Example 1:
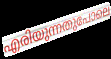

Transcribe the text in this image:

എരിയുന്നതുപോലെ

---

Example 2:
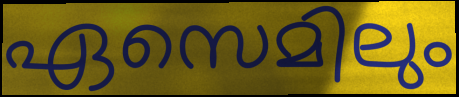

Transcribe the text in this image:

ഏസെമിലും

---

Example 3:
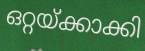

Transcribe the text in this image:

ഒറ്റയ്ക്കാക്കി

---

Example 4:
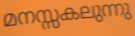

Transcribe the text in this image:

മനസ്സകലുന്നു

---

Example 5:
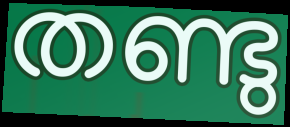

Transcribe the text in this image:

തണ്ടു